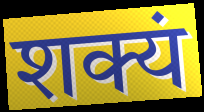
शक्यं